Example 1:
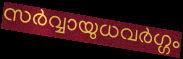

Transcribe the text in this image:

സർവ്വായുധവർഗ്ഗം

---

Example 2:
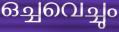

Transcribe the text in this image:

ഒച്ചവെച്ചും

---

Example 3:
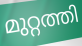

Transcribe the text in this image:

മുറ്റത്തി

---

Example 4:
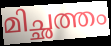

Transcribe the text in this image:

മിച്ഛത്തം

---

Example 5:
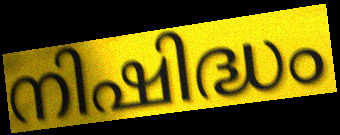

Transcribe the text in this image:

നിഷിദ്ധം